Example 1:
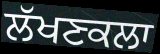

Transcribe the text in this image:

ਲੱਖਣਕਲਾ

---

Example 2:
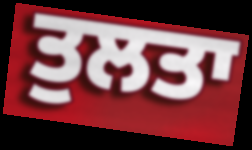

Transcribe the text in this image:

ਤੁਲਤਾ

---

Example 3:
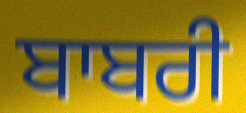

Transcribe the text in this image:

ਬਾਬਰੀ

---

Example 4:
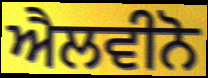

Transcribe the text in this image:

ਐਲਵੀਨੋ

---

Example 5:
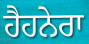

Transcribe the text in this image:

ਹੈਹਨੇਰਾ